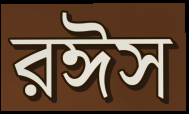
রঈস